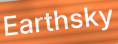
Earthsky